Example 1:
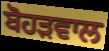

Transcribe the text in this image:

ਬੋਹੜਵਾਲ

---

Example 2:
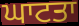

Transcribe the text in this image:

ਘਾਟਤਾ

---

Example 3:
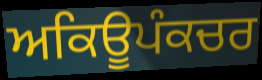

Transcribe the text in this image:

ਅਕਿਊਪੰਕਚਰ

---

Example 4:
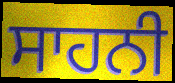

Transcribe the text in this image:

ਸਾਹਨੀ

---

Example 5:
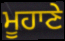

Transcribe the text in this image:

ਮੂਹਾਣੇ